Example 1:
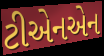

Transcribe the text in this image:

ટીએનએન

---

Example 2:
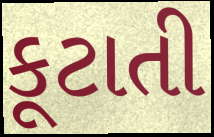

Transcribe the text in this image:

કૂટાતી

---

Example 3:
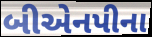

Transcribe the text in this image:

બીએનપીના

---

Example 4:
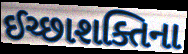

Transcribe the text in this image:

ઈચ્છાશક્તિના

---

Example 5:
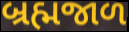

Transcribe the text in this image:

બ્રહ્મજાળ